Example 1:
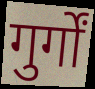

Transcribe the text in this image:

गुर्गों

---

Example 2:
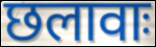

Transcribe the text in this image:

छलावाः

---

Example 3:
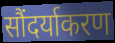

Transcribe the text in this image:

सौंदर्याकरण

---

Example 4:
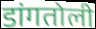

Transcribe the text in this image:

डांगतोली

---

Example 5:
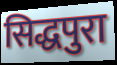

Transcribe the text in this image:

सिद्धपुरा